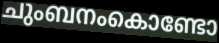
ചുംബനംകൊണ്ടോ